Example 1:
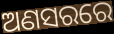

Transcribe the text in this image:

ଅଣସରରେ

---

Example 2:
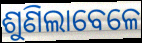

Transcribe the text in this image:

ଶୁଣିଲାବେଳେ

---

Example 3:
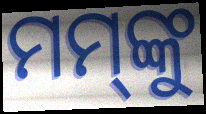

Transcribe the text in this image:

ମମ୍‌ଙ୍କୁ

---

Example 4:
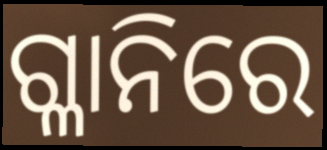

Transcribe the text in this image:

ଗ୍ଳାନିରେ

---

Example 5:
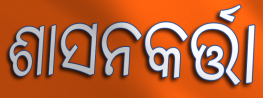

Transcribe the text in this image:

ଶାସନକର୍ତ୍ତା